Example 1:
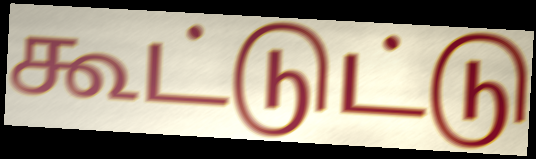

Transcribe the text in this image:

கூட்டுட்டு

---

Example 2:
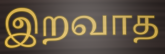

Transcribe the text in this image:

இறவாத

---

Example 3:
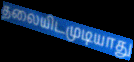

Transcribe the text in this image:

தலையிடமுடியாது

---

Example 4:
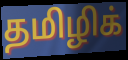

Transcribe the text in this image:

தமிழிக்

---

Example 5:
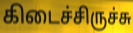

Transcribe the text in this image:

கிடைச்சிருச்சு